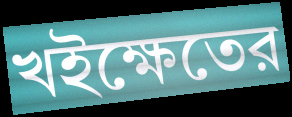
খইক্ষেতের